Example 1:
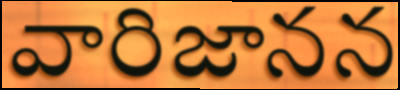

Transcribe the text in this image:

వారిజానన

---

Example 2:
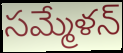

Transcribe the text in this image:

సమ్మేళన్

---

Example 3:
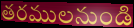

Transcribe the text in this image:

తరములనుండి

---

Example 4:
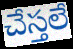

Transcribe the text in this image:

చేస్తలే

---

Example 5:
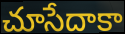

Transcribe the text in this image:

చూసేదాకా